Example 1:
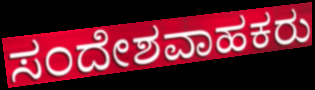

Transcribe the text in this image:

ಸಂದೇಶವಾಹಕರು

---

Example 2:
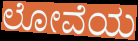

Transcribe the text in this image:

ಲೋವೆಯ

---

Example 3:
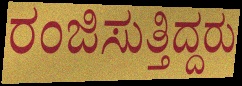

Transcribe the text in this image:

ರಂಜಿಸುತ್ತಿದ್ದರು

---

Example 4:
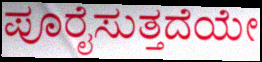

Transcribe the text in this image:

ಪೂರೈಸುತ್ತದೆಯೇ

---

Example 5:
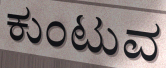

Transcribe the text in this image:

ಕುಂಟುವ